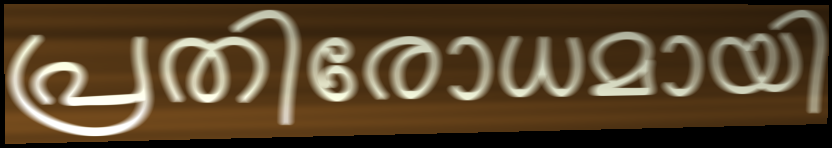
പ്രതിരോധമായി